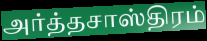
அர்த்தசாஸ்திரம்